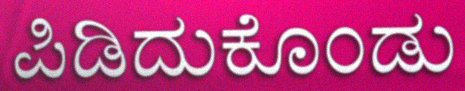
ಪಿಡಿದುಕೊಂಡು